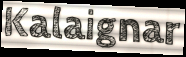
Kalaignar